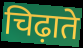
चिढ़ाते